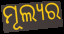
ମୂଲ୍ୟର